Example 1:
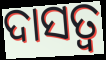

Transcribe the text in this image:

ଦାସତ୍ଵ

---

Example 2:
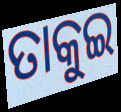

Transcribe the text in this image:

ତାକୁଇ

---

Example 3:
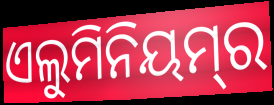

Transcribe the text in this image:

ଏଲୁମିନିୟମ୍‌ର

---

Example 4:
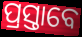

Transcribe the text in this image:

ପ୍ରସ୍ତାବେ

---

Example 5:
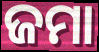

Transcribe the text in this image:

ଜମା